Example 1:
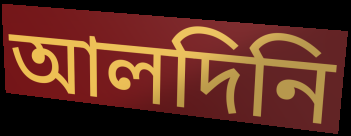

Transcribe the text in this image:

আলদিনি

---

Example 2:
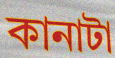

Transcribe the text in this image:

কানাটা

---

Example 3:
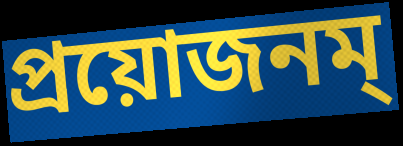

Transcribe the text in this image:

প্রয়োজনম্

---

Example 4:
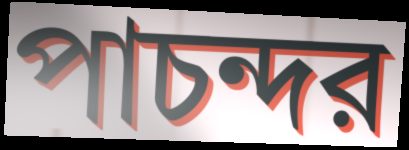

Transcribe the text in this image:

পাচন্দর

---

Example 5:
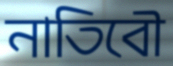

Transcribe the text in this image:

নাতিবৌ